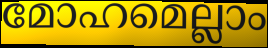
മോഹമെല്ലാം